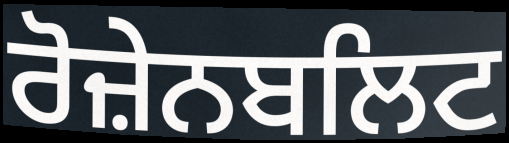
ਰੋਜ਼ੇਨਬਲਿਟ